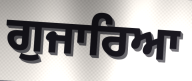
ਗੁਜਾਰਿਆ